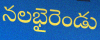
నలభైరెండు